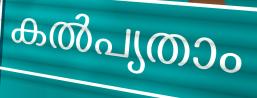
കൽപ്യതാം